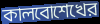
কালবোশেখের